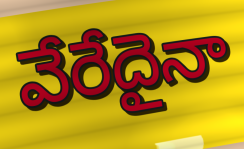
వేరేదైనా